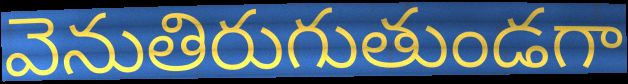
వెనుతిరుగుతుండగా